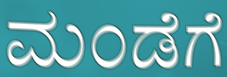
ಮಂಡೆಗೆ